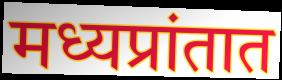
मध्यप्रांतात